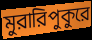
মুরারিপুকুরে